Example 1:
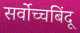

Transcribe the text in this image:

सर्वोच्चबिंदू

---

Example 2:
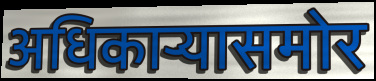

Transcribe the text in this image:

अधिकाऱ्यासमोर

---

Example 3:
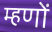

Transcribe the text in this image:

म्हणों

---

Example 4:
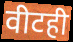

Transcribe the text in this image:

वीटही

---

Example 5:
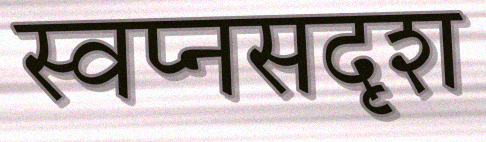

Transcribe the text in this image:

स्वप्नसदृश